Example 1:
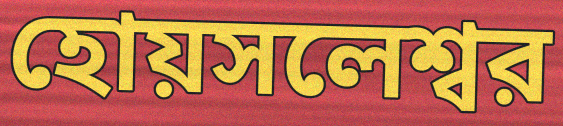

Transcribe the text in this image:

হোয়সলেশ্বর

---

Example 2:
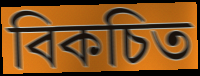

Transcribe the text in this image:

বিকচিত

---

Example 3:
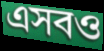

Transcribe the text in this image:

এসবও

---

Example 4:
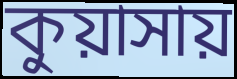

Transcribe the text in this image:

কুয়াসায়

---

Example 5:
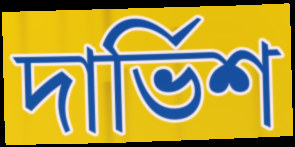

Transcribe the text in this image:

দার্ভিশ